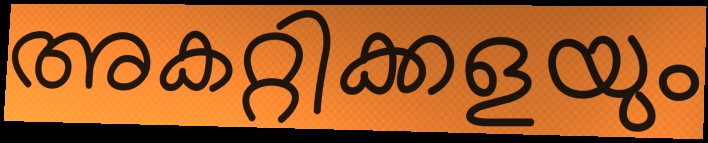
അകറ്റിക്കളയും